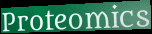
Proteomics